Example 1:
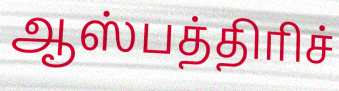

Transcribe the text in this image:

ஆஸ்பத்திரிச்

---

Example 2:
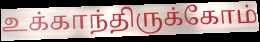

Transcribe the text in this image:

உக்காந்திருக்கோம்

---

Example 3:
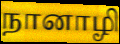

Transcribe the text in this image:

நானாழி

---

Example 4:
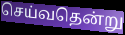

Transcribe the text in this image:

செய்வதென்று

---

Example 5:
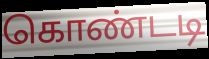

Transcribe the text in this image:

கொண்டடி